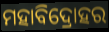
ମହାବିଦ୍ରୋହର